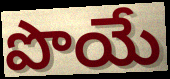
పొయే